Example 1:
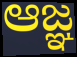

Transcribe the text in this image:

ఆజ్ఞ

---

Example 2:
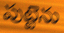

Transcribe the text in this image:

పుట్టెను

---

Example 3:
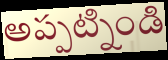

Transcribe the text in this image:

అప్పట్నిండి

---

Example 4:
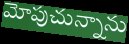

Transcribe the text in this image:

మోపుచున్నాను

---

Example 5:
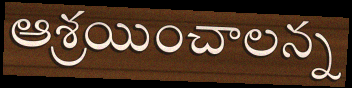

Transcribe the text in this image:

ఆశ్రయించాలన్న